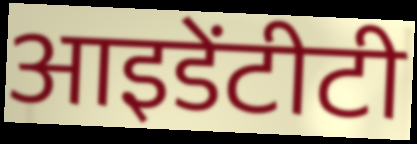
आइडेंटीटी